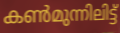
കൺമുന്നിലിട്ട്